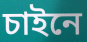
চাইনে